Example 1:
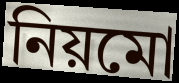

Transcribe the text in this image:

নিয়মো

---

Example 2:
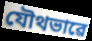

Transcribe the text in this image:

যৌথভাৱে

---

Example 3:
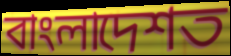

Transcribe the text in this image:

বাংলাদেশত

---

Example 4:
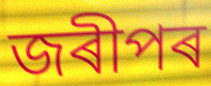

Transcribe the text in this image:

জৰীপৰ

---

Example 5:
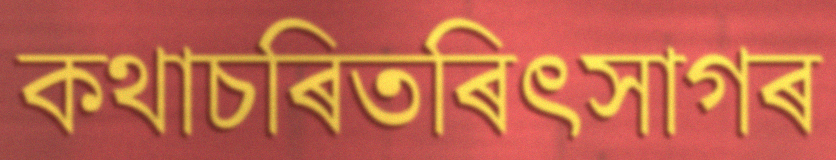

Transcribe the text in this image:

কথাচৰিতৰিৎসাগৰ